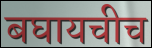
बघायचीच